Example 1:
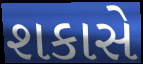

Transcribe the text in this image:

શકાસે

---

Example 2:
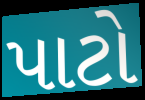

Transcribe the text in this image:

પાટો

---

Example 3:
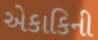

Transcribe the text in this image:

એકાકિની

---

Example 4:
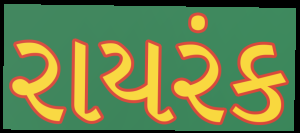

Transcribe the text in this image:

રાયરંક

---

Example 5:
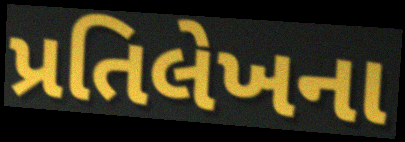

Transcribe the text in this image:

પ્રતિલેખના